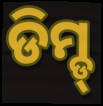
ଡିମ୍ଡ୍